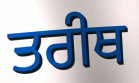
ਤਰੀਥ